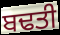
ਬਢਤੀ